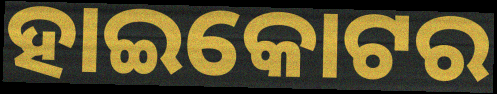
ହାଇକୋଟର